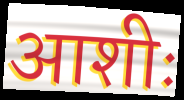
आशीः